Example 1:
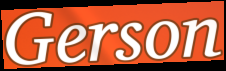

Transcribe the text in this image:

Gerson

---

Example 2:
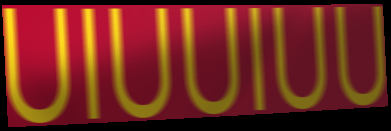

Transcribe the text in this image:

UIUUIUU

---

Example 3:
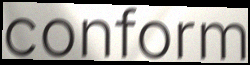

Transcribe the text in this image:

conform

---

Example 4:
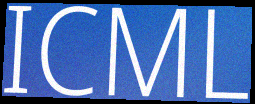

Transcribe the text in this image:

ICML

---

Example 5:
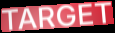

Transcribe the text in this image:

TARGET